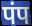
पंप